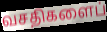
வசதிகளைப்